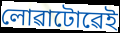
লোৱাটোৱেই